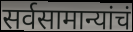
सर्वसामान्यांचं